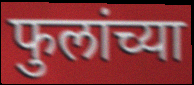
फुलांच्या